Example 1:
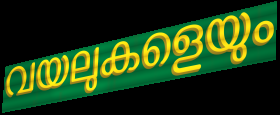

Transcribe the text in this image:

വയലുകളെയും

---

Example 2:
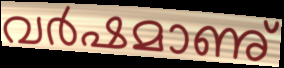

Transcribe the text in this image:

വർഷമാണു്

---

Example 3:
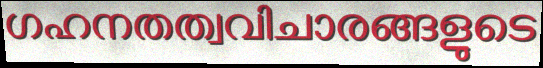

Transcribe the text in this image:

ഗഹനതത്വവിചാരങ്ങളുടെ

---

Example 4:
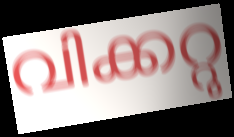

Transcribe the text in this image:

വിക്കറ്റു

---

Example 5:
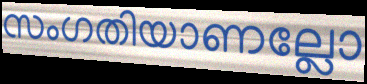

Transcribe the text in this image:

സംഗതിയാണല്ലോ